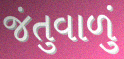
જંતુવાળું